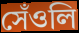
সেঁওলি